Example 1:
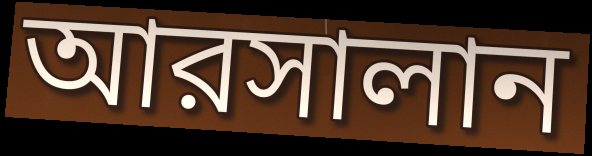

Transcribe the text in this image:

আরসালান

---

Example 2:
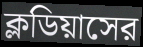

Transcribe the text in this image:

ক্লডিয়াসের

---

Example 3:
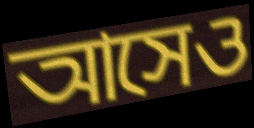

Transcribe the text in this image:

আসেও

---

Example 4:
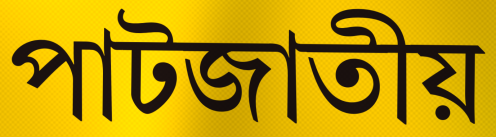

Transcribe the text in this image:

পাটজাতীয়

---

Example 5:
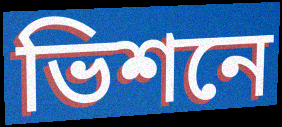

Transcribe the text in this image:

ভিশনে